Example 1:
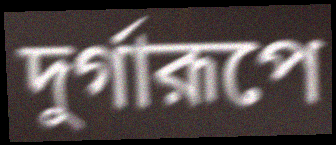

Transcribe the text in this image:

দুর্গারূপে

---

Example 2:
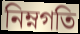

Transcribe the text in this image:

নিম্নগতি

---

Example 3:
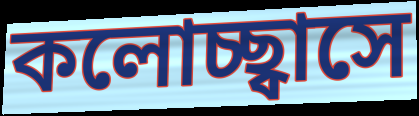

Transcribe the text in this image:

কলোচ্ছ্বাসে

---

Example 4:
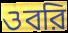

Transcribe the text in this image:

ওবরি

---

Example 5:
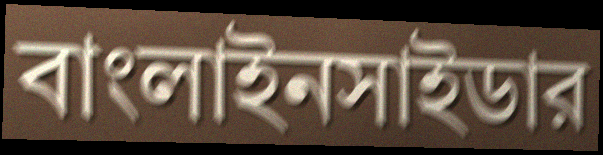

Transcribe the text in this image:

বাংলাইনসাইডার